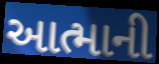
આત્માની